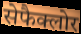
सेफैक्लोर